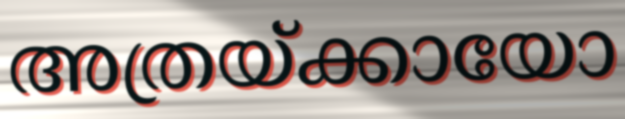
അത്രയ്ക്കായോ